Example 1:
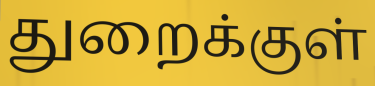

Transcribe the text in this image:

துறைக்குள்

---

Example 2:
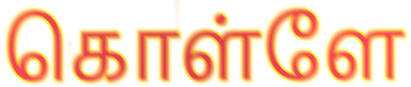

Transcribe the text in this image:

கொள்ளே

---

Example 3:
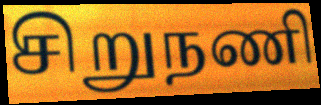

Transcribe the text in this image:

சிறுநணி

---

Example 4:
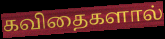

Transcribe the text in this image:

கவிதைகளால்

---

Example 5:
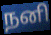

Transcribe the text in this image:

நனி